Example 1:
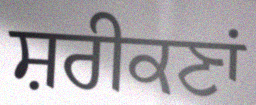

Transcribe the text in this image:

ਸ਼ਰੀਕਣਾਂ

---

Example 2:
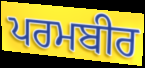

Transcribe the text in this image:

ਪਰਮਬੀਰ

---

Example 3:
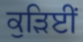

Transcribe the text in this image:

ਕੁੜਿਈਂ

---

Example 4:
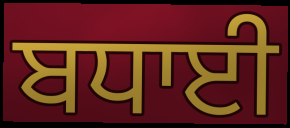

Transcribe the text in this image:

ਬਧਾਈ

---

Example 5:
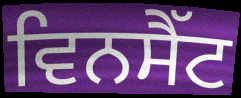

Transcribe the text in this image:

ਵਿਨਸੈੱਟ